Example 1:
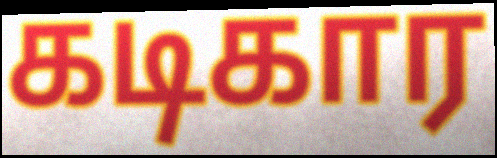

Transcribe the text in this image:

கடிகார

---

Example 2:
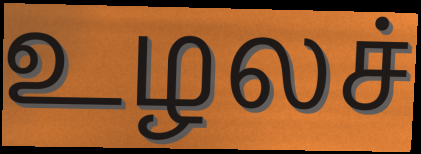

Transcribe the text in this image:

உழலச்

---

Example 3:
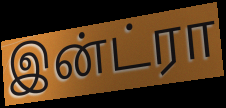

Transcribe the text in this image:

இன்ட்ரா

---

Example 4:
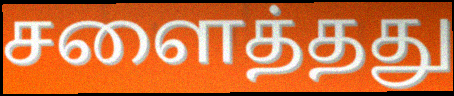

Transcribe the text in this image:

சளைத்தது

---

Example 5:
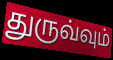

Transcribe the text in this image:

துருவ்வும்